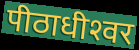
पीठाधीश्वर